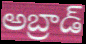
అబ్రాడ్